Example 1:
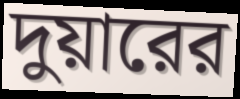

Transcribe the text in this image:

দুয়ারের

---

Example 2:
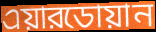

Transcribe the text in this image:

এয়ারডোয়ান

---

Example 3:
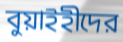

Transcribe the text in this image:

বুয়াইহীদের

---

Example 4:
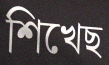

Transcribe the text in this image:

শিখেছ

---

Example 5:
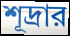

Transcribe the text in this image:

শূদ্রার